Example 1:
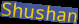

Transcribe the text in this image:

Shushan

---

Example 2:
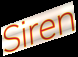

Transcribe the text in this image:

Siren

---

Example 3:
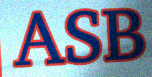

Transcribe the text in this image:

ASB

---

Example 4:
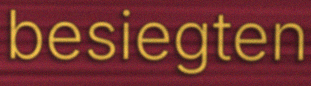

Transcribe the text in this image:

besiegten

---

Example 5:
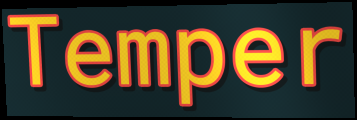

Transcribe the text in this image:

Temper